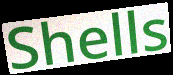
Shells